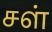
சள்